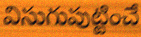
విసుగుపుట్టించే